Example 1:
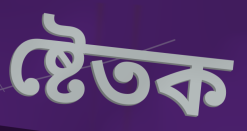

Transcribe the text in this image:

ষ্টেতক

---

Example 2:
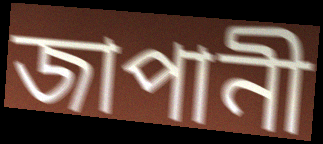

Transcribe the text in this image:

জাপানী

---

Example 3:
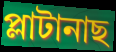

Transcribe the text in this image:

প্লাটানাছ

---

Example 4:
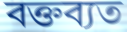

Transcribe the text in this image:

বক্তব্যত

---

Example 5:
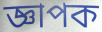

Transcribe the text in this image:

জ্ঞাপক